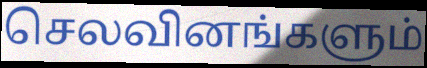
செலவினங்களும்